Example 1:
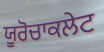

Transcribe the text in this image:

ਯੂਰੋਚਾਕਲੇਟ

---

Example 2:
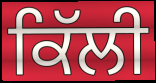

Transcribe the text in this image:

ਕਿੱਲੀ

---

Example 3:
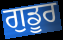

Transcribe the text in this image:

ਗੁਡੂਰ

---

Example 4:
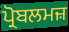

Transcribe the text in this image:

ਪ੍ਰੋਬਲਮਜ਼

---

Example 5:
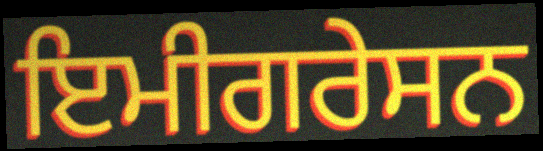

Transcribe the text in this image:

ਇਮੀਗਰੇਸਨ